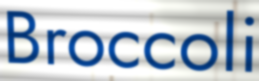
Broccoli